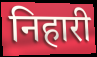
निहारी